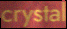
crystal